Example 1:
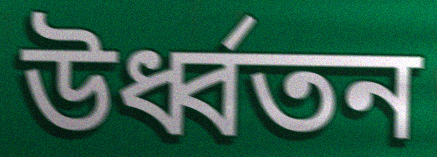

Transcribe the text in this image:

উর্ধ্বতন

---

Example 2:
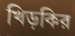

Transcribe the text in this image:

খিড়কির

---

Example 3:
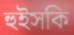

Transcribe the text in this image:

হুইসকি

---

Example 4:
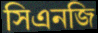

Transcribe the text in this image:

সিএনজি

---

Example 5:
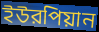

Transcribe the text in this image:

ইউরপিয়ান